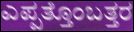
ಎಪ್ಪತ್ತೊಂಬತ್ತರ